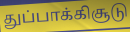
துப்பாக்கிசூடு